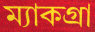
ম্যাকগ্রা